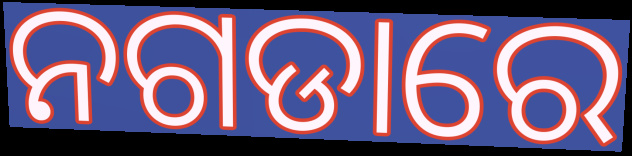
ନଗଡାରେ